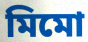
মিমো